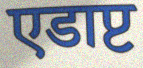
एडाप्ट